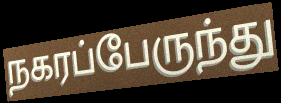
நகரப்பேருந்து